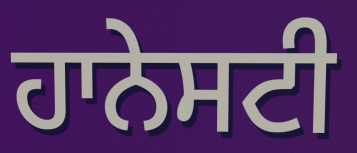
ਹਾਨੇਸਟੀ